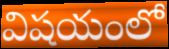
విషయంలో